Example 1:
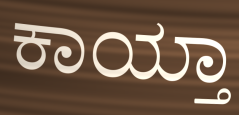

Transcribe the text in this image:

ಕಾಯ್ತಾ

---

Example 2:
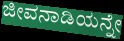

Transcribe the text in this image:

ಜೀವನಾಡಿಯನ್ನೇ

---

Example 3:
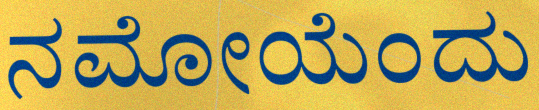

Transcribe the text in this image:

ನಮೋಯೆಂದು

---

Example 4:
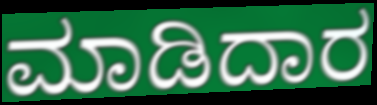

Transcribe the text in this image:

ಮಾಡಿದಾರ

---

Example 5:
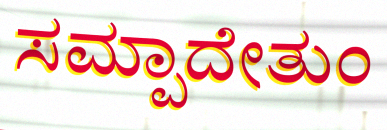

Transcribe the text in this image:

ಸಮ್ಪಾದೇತುಂ